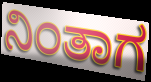
ನಿಂತಾಗ